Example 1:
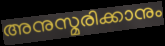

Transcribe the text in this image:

അനുസ്മരിക്കാനും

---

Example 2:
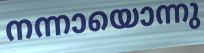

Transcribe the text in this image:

നന്നായൊന്നു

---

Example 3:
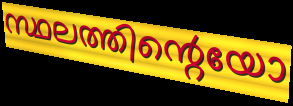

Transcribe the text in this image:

സ്ഥലത്തിന്റെയോ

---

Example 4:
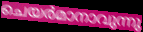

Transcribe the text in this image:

ചെയർമാനാവുന്നു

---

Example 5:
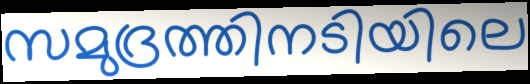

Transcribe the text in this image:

സമുദ്രത്തിനടിയിലെ